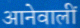
आनेवालीं